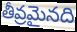
తీవ్రమైనది